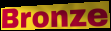
Bronze